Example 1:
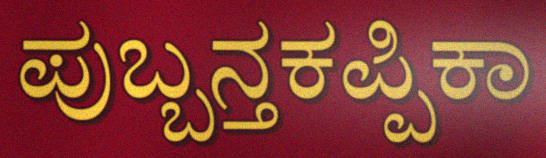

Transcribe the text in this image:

ಪುಬ್ಬನ್ತಕಪ್ಪಿಕಾ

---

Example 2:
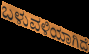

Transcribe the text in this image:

ಬಳುವಳಿಯಾಗಿದೆ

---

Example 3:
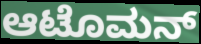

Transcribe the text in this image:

ಆಟೊಮನ್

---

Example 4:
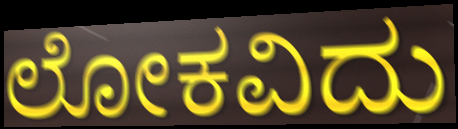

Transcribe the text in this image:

ಲೋಕವಿದು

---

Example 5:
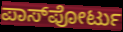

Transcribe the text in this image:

ಪಾಸ್‌ಪೋರ್ಟು